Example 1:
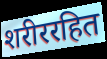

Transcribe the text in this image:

शरीररहित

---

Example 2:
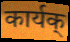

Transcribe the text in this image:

कार्यक्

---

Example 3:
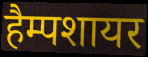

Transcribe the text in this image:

हैम्पशायर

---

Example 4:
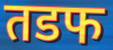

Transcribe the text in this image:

तडफ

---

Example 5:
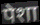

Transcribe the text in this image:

पेशा